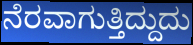
ನೆರವಾಗುತ್ತಿದ್ದುದು